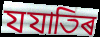
যযাতিৰ